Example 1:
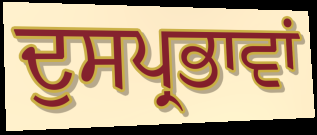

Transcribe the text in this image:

ਦੁਸਪ੍ਰਭਾਵਾਂ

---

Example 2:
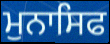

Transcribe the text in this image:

ਮੁਨਾਸਿਫ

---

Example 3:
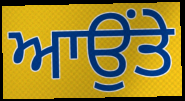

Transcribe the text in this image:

ਆਉਂਤੇ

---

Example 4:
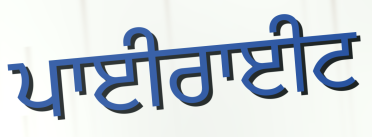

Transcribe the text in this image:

ਪਾਈਰਾਈਟ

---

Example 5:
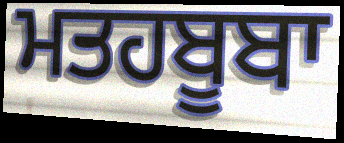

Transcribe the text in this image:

ਮਤਹਬੂਬਾ